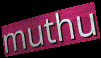
muthu